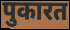
पुकारत